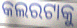
କଲରଟାକୁ